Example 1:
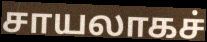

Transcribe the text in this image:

சாயலாகச்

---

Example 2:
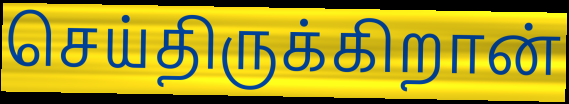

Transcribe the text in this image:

செய்திருக்கிறான்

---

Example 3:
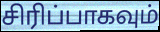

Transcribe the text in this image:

சிரிப்பாகவும்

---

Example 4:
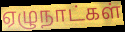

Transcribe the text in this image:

ஏழுநாட்கள்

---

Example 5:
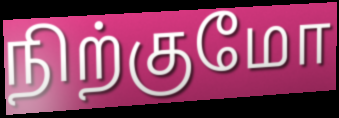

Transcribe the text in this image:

நிற்குமோ